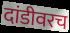
दांडीवरच